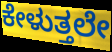
ಕೇಳುತ್ತಲೇ